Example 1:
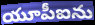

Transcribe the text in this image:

యూపీఐను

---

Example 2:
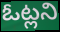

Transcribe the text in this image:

ఓట్లని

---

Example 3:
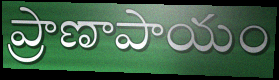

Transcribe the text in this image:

ప్రాణాపాయం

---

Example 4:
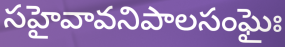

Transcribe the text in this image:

సహైవావనిపాలసంఘైః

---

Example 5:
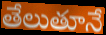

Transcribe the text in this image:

తేలుతూనే